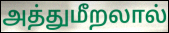
அத்துமீறலால்